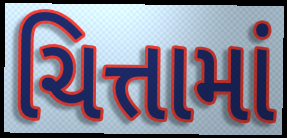
ચિત્તામાં